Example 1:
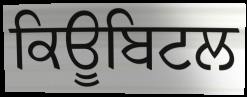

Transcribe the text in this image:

ਕਿਊਬਿਟਲ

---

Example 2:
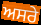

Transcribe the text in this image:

ਅਸਰੇ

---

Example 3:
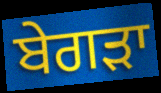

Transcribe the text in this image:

ਬੇਗੜਾ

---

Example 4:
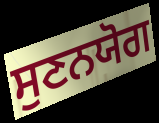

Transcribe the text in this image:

ਸੁਣਨਯੋਗ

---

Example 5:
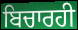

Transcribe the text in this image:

ਬਿਚਾਰਹੀ